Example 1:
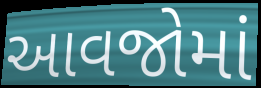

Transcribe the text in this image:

આવજોમાં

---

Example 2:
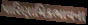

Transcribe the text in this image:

પારિણામિકભાવના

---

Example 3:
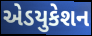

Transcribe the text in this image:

એડયુકેશન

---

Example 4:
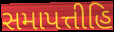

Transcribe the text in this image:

સમાપત્તીહિ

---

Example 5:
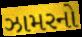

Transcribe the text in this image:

ઝામરનો